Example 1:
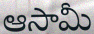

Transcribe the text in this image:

ఆసామీ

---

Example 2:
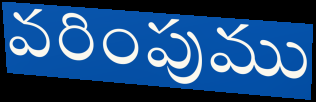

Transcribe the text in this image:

వరింపుము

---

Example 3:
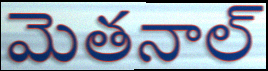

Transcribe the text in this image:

మెతనాల్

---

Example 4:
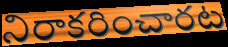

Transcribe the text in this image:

నిరాకరించారట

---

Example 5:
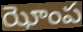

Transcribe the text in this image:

ఝోంప